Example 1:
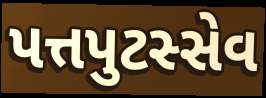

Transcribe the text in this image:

પત્તપુટસ્સેવ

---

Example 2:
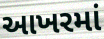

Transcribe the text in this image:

આખરમાં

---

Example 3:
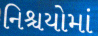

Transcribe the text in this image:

નિશ્ચયોમાં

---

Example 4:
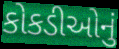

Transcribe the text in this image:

કોકડીઓનું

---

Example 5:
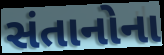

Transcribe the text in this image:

સંતાનોના